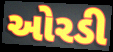
ઓરડી